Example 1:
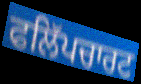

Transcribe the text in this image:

ਫਲਿੱਪਚਾਰਟ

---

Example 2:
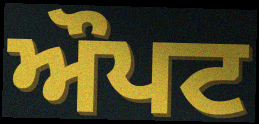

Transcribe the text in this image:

ਔਪਟ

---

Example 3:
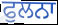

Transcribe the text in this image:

ਫੁਲਨਾ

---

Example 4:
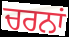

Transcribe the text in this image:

ਚਰਨਾਂ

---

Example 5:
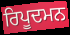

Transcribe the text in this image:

ਰਿਪੂਦਮਨ